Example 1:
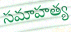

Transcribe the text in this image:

సమాహత్య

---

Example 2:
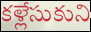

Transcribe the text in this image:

కళ్లేసుకుని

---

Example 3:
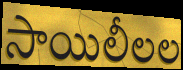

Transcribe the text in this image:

సాయిలీలల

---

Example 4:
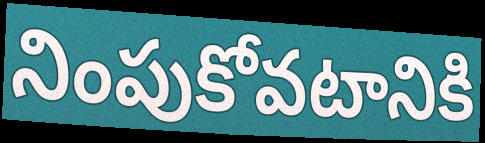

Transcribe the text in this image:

నింపుకోవటానికి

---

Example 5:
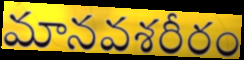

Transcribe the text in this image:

మానవశరీరం